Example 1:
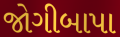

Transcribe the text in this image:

જોગીબાપા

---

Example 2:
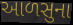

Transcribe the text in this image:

આળસુના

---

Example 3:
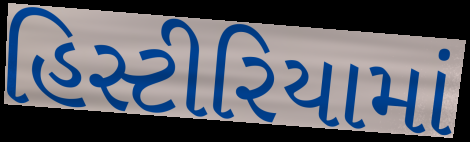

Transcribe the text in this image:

હિસ્ટીરિયામાં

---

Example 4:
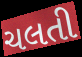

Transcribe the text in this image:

ચલતી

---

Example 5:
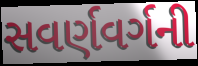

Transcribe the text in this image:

સવર્ણવર્ગની